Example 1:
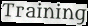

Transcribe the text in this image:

Training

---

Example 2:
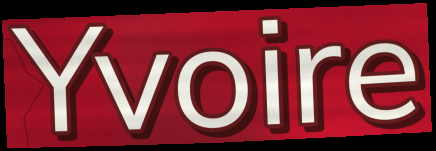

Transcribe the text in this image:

Yvoire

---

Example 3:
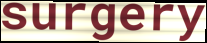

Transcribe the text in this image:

surgery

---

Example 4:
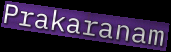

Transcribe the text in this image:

Prakaranam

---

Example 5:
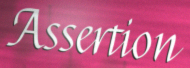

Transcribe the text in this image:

Assertion